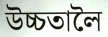
উচ্চতালৈ